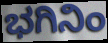
ಭಗಿನಿಂ